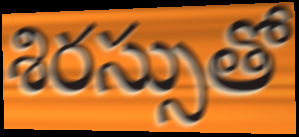
శిరస్సుతో